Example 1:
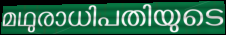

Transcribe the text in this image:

മഥുരാധിപതിയുടെ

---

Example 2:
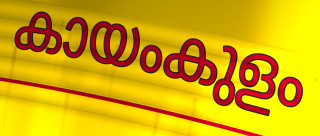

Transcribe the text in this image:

കായംകുളം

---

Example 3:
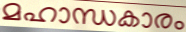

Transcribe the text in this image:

മഹാന്ധകാരം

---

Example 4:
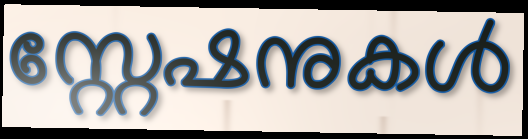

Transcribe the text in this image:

സ്റ്റേഷനുകൾ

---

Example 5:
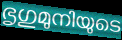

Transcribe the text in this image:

ഭൃഗുമുനിയുടെ